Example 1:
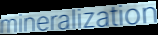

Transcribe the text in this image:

mineralization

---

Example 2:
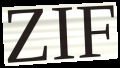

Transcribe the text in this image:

ZIF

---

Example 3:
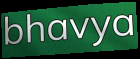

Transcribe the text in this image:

bhavya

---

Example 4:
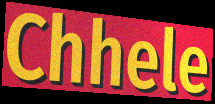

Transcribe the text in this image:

Chhele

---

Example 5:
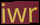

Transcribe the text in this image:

iwr